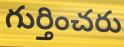
గుర్తించరు